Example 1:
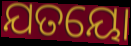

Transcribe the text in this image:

ଯତୟୋ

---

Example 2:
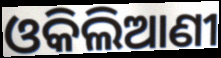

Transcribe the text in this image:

ଓକିଲିଆଣୀ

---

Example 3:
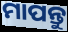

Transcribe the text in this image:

ମାପନ୍ତୁ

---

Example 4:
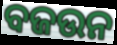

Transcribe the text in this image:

ବଜଉନ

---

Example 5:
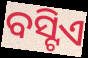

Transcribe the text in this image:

ବସ୍ଟିଏ